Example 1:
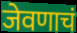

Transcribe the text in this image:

जेवणाचं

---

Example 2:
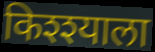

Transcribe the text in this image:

किश्श्याला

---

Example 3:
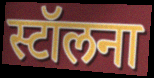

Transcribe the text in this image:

स्टॉलना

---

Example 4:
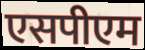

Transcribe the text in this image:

एसपीएम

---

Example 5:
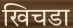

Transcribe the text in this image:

खिचडा